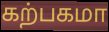
கற்பகமா